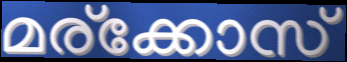
മര്ക്കോസ്